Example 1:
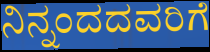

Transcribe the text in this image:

ನಿನ್ನಂದದವರಿಗೆ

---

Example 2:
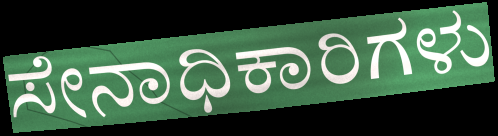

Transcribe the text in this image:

ಸೇನಾಧಿಕಾರಿಗಳು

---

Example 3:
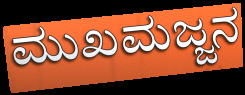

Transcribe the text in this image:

ಮುಖಮಜ್ಜನ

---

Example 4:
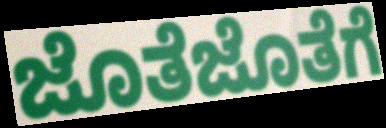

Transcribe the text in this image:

ಜೊತೆಜೊತೆಗೆ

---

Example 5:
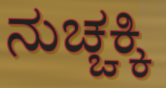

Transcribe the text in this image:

ನುಚ್ಚಕ್ಕಿ